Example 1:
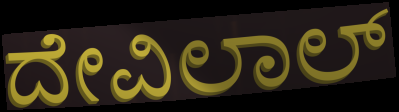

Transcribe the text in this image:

ದೇವಿಲಾಲ್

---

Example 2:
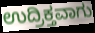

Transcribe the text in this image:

ಉದ್ರಿಕ್ತವಾಗು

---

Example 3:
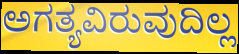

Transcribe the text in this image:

ಅಗತ್ಯವಿರುವುದಿಲ್ಲ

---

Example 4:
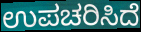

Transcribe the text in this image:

ಉಪಚರಿಸಿದೆ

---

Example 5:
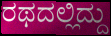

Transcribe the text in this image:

ರಥದಲ್ಲಿದ್ದು